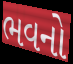
ભવનો